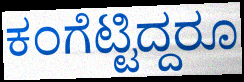
ಕಂಗೆಟ್ಟಿದ್ದರೂ